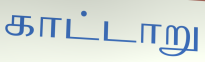
காட்டாறு